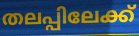
തലപ്പിലേക്ക്